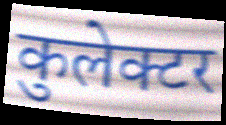
कुलेक्टर